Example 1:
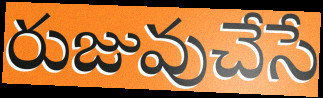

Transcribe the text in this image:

రుజువుచేసే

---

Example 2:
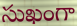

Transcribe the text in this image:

సుఖంగా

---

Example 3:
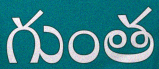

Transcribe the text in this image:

గుంత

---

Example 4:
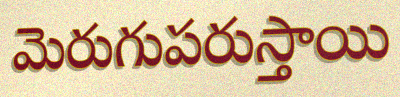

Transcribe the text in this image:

మెరుగుపరుస్తాయి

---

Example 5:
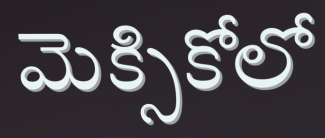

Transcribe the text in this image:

మెక్సికోలో